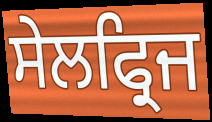
ਸੇਲਫ੍ਰਿਜ